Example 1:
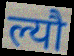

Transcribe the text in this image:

ल्यौ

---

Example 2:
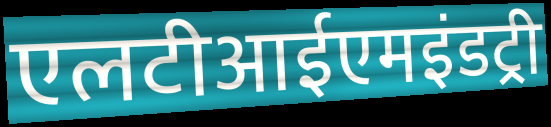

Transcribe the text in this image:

एलटीआईएमइंडट्री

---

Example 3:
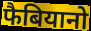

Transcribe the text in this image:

फैबियानो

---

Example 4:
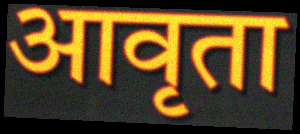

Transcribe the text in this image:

आवृता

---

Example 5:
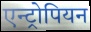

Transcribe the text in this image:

एन्ट्रोपियन